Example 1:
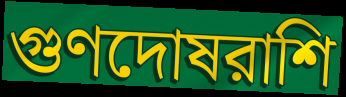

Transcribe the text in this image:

গুণদোষরাশি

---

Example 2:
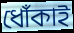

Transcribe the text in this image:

ধোঁকাই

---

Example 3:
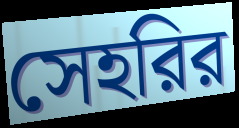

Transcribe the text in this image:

সেহরির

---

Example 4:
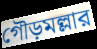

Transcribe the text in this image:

গৌড়মল্লার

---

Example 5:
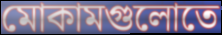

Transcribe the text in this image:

মোকামগুলোতে